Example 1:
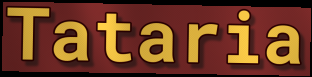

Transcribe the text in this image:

Tataria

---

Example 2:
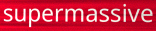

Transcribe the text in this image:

supermassive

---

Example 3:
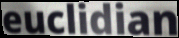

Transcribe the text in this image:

euclidian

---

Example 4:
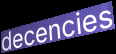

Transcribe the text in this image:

decencies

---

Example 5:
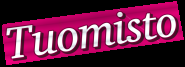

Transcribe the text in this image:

Tuomisto